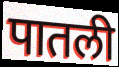
पातली